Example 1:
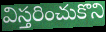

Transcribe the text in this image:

విస్తరించుకొని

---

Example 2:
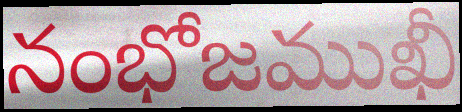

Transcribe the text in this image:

నంభోజముఖీ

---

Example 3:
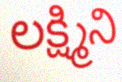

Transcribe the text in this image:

లక్ష్మిని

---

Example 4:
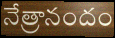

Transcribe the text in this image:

నేత్రానందం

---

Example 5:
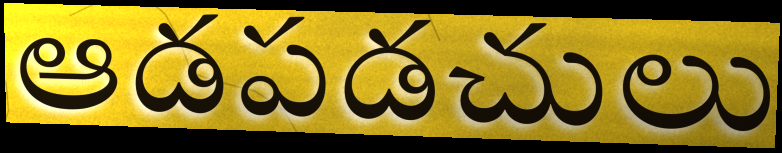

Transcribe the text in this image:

ఆడపడచులు